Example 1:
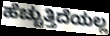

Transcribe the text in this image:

ಹೆಚ್ಚುತ್ತಿದೆಯಲ್ಲ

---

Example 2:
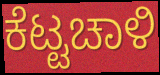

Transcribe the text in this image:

ಕೆಟ್ಟಚಾಳಿ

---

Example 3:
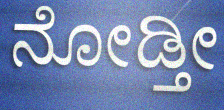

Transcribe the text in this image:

ನೋಡ್ತೀ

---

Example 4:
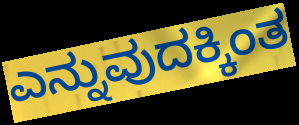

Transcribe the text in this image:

ಎನ್ನುವುದಕ್ಕಿಂತ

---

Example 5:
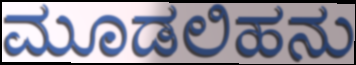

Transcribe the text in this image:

ಮೂಡಲಿಹನು